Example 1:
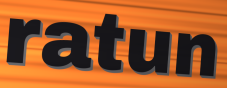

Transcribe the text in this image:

ratun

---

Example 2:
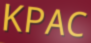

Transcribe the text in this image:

KPAC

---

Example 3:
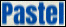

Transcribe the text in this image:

Pastel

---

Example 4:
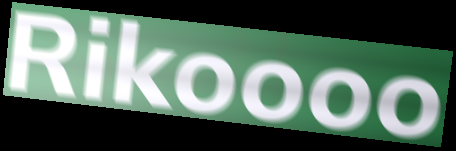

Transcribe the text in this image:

Rikoooo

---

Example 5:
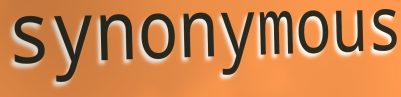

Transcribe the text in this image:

synonymous